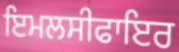
ਇਮਲਸੀਫਾਇਰ